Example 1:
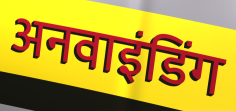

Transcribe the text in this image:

अनवाइंडिंग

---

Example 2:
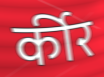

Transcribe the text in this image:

र्कीर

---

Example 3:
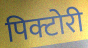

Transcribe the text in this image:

पिक्टोरी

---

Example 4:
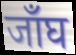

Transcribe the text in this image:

जाँघ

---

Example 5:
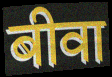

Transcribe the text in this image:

बीवा